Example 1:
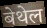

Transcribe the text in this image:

बेथेल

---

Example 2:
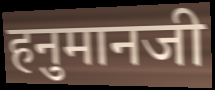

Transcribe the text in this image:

हनुमानजी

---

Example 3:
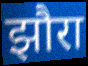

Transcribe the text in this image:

झौरा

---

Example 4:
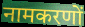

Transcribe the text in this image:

नामकरणों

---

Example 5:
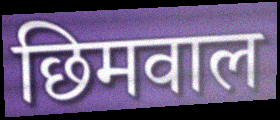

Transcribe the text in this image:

छिमवाल